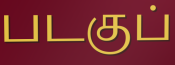
படகுப்